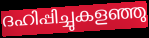
ദഹിപ്പിച്ചുകളഞ്ഞു